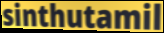
sinthutamil